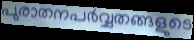
പുരാതനപർവ്വതങ്ങളുടെ